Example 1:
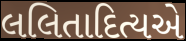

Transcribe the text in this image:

લલિતાદિત્યએ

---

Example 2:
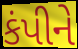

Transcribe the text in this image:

કંપીને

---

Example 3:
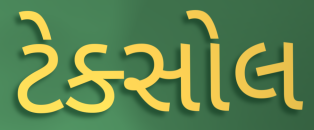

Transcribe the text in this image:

ટેક્સોલ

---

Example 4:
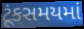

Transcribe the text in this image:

ટૂંકસમયમાં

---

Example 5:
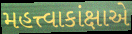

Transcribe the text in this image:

મહત્ત્વાકાંક્ષાએ